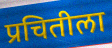
प्रचितीला